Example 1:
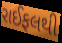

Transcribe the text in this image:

રાઈફલથી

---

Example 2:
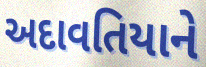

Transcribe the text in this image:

અદાવતિયાને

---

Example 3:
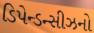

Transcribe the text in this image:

ડિપેન્ડન્સીઝનો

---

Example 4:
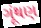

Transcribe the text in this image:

ગૂંથણ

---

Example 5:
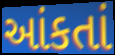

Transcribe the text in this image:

આંકતાં